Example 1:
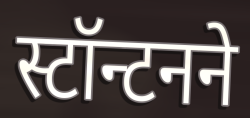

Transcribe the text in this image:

स्टॉन्टनने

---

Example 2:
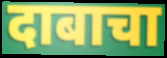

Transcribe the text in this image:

दाबाचा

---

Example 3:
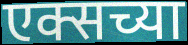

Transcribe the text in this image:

एक्सच्या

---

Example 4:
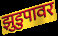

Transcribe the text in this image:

झुडुपावर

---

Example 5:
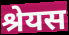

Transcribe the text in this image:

श्रेयस